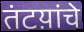
तंटय़ांचे